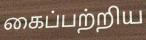
கைப்பற்றிய